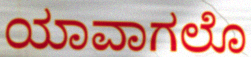
ಯಾವಾಗಲೊ